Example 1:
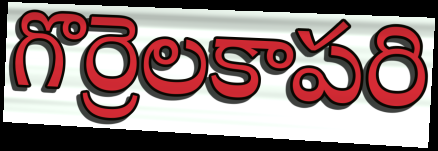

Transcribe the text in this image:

గొర్రెలకాపరి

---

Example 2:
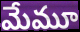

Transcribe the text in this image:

మేమూ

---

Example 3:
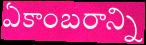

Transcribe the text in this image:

ఏకాంబరాన్ని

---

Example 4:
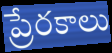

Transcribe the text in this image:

ప్రేరకాలు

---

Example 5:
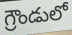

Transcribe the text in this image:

గ్రౌండులో